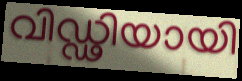
വിഡ്ഢിയായി